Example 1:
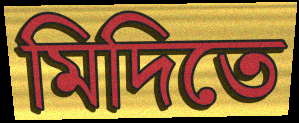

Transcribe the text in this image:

মিদিতে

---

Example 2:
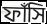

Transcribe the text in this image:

ফাঁসি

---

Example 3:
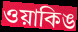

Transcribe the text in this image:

ওয়াকিঙ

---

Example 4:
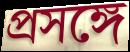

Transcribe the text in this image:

প্রসঙ্গে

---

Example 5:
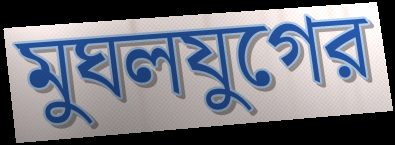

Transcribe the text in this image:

মুঘলযুগের